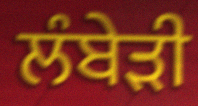
ਲੰਬੇੜੀ